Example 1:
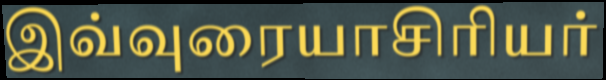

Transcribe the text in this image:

இவ்வுரையாசிரியர்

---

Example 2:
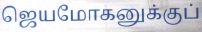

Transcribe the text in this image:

ஜெயமோகனுக்குப்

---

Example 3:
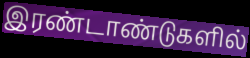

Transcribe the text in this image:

இரண்டாண்டுகளில்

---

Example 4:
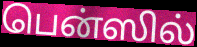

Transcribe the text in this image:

பென்ஸில்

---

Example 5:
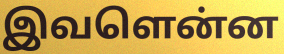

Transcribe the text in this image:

இவளென்ன